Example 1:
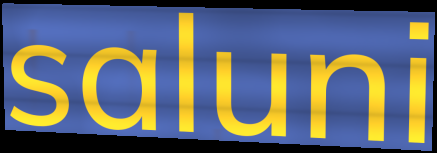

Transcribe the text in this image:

saluni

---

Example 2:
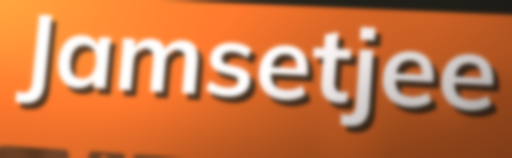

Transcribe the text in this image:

Jamsetjee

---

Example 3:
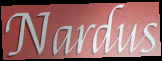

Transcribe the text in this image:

Nardus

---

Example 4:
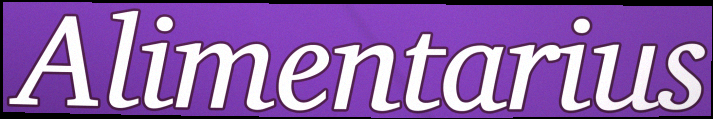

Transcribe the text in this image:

Alimentarius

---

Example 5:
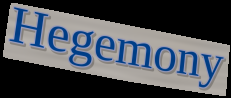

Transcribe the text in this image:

Hegemony